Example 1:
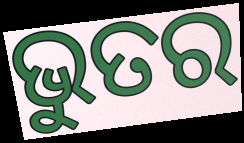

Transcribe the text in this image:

ଭୁତର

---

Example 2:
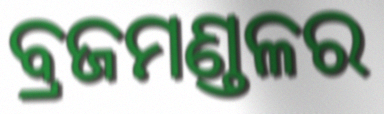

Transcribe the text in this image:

ବ୍ରଜମଣ୍ଡଳର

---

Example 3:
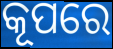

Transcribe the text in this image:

କୂପରେ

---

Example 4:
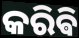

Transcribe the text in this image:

କରିଵି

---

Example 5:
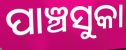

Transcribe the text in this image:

ପାଞ୍ଚସୁକା